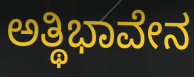
ಅತ್ಥಿಭಾವೇನ